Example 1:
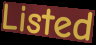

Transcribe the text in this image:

Listed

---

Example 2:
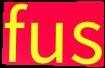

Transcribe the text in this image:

fus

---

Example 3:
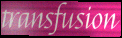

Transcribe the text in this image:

transfusion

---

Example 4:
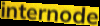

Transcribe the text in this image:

internode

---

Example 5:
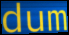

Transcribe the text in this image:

dum